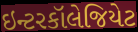
ઇન્ટરકૉલેજિયેટ